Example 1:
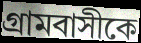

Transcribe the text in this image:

গ্রামবাসীকে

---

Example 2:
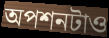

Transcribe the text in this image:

অপশনটাও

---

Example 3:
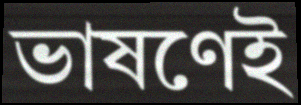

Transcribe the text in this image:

ভাষণেই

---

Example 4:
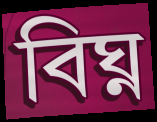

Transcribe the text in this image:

বিঘ্ন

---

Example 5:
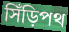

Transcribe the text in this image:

সিঁড়িপথ